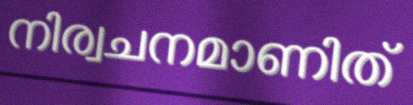
നിര്വചനമാണിത്